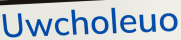
Uwcholeuo